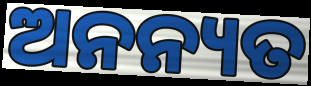
ଅନନ୍ୟତ